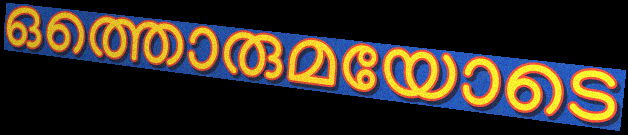
ഒത്തൊരുമയോടെ